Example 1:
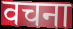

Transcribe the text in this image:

वचना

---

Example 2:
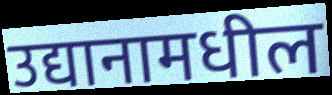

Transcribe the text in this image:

उद्यानामधील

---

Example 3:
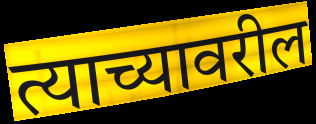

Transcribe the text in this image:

त्याच्यावरील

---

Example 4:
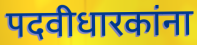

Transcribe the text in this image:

पदवीधारकांना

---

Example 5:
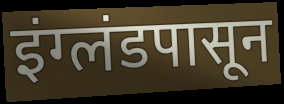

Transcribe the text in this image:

इंग्लंडपासून